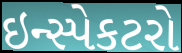
ઇન્સ્પેકટરો